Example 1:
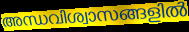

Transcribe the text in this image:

അന്ധവിശ്വാസങ്ങളിൽ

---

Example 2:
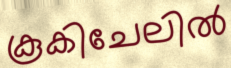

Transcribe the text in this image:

കൂകിചേലിൽ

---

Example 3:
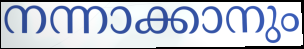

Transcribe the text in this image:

നന്നാക്കാനും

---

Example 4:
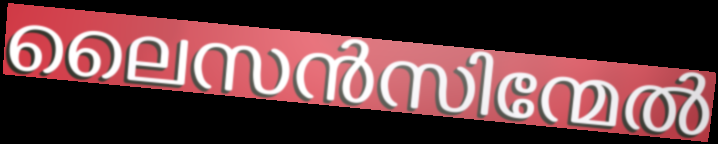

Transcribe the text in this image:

ലൈസൻസിന്മേൽ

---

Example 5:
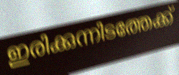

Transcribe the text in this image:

ഇരിക്കുന്നിടത്തേക്ക്